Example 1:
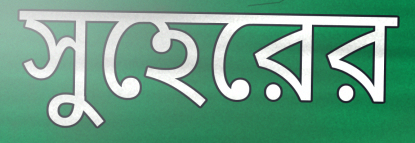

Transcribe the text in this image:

সুহেরের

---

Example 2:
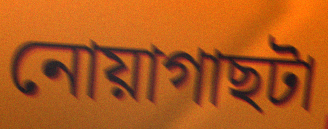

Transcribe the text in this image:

নোয়াগাছটা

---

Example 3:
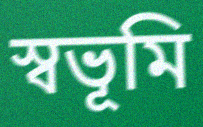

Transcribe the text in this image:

স্বভূমি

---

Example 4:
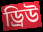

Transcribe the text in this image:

ড্রিউ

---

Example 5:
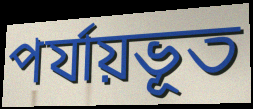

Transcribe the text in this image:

পর্যায়ভূত